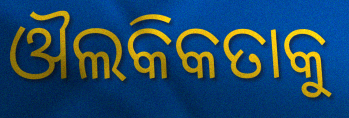
ଔଲକିକତାକୁ